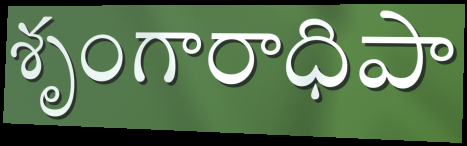
శృంగారాధిపా